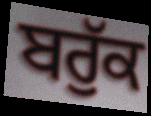
ਬਰੁੱਕ